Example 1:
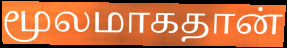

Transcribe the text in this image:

மூலமாகதான்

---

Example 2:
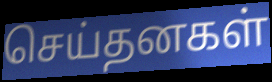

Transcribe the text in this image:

செய்தனகள்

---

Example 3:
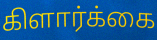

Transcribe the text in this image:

கிளார்க்கை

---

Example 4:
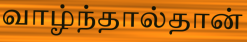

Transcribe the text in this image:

வாழ்ந்தால்தான்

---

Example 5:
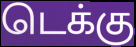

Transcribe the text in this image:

டெக்கு